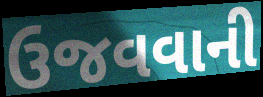
ઉજવવાની